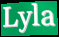
Lyla